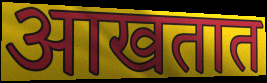
आखतात